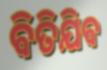
ବିତିଯିବ